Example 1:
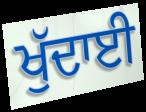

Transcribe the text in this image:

ਖੁੱਦਾਈ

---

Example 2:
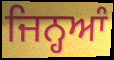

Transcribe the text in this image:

ਜਿਨ੍ਹਆੰ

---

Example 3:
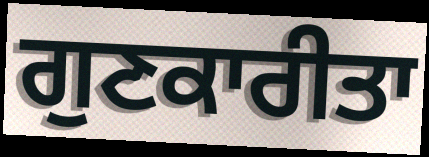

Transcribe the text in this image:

ਗੁਣਕਾਰੀਤਾ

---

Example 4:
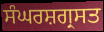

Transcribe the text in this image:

ਸੰਘਰਸ਼ਗ੍ਰਸਤ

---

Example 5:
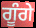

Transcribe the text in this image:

ਗੂੰਗੇ